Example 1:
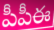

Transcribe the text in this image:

పీపీఈ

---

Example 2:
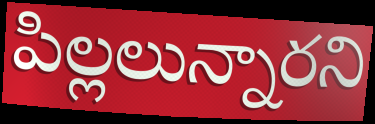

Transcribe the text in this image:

పిల్లలున్నారని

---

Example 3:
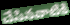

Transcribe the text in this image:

చేసినవాటికి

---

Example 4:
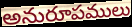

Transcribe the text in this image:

అనురూపములు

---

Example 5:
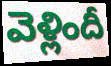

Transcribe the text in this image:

వెళ్లిందీ